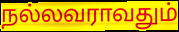
நல்லவராவதும்